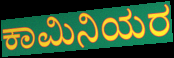
ಕಾಮಿನಿಯರ